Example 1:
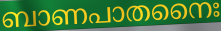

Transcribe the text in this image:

ബാണപാതനൈഃ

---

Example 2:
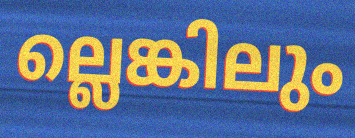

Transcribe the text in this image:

ല്ലെങ്കിലും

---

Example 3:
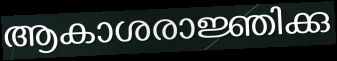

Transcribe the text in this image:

ആകാശരാജ്ഞിക്കു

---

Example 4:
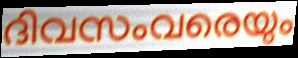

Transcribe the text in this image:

ദിവസംവരെയും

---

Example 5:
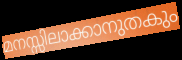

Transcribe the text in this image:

മനസ്സിലാക്കാനുതകും